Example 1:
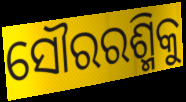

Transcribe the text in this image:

ସୌରରଶ୍ମିକୁ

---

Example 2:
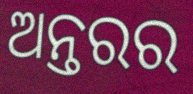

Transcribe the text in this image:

ଅନ୍ତରର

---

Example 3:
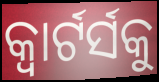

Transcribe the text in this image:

କ୍ୱାର୍ଟର୍ସକୁ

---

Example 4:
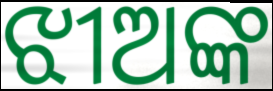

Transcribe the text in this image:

ଝୀଅଙ୍କ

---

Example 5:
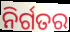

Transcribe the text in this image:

ନିର୍ଗତର